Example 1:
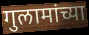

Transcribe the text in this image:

गुलामांच्या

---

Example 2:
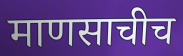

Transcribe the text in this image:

माणसाचीच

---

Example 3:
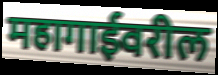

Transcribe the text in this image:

महागाईवरील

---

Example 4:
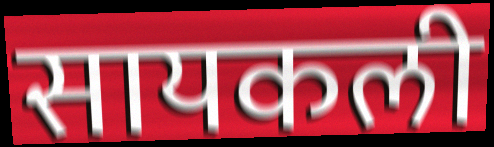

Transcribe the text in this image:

सायकली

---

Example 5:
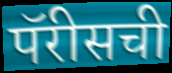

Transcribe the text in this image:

पॅरीसची